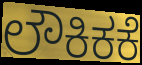
ಲೌಕಿಕಕೆ